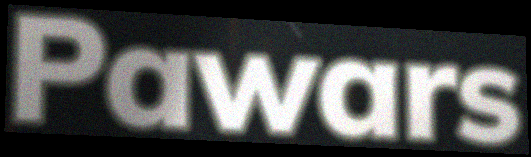
Pawars